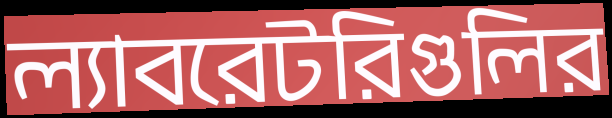
ল্যাবরেটরিগুলির